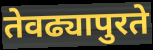
तेवढ्यापुरते